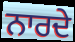
ਨਾਰਦੇ